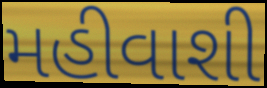
મહીવાશી